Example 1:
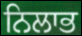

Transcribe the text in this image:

ਨਿਲਾਭ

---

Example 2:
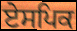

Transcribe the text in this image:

ਏਸਪਿਕ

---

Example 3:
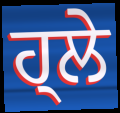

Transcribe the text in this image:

ਹ੍ਲੇ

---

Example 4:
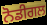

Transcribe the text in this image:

ਨੋਡੀਗਲ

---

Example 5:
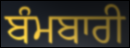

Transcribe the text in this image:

ਬੰਮਬਾਰੀ